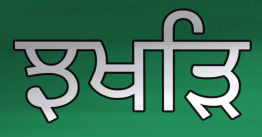
ਝਖੜਿ